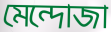
মেন্দোজা